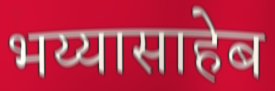
भय्यासाहेब